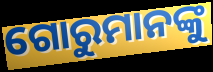
ଗୋରୁମାନଙ୍କୁ